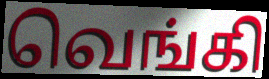
வெங்கி